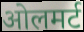
ओलमर्ट